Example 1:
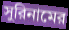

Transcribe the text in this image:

সুরিনামের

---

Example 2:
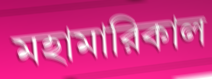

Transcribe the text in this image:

মহামারিকাল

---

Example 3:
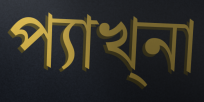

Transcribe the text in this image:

প্যাখ্না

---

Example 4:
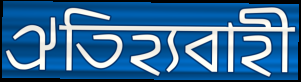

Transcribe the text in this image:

ঐতিহ্যবাহী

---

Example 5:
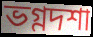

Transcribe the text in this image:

ভগ্নদশা